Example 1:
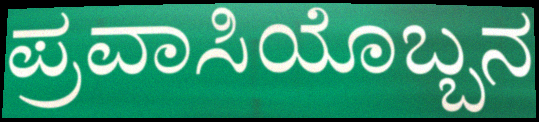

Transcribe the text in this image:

ಪ್ರವಾಸಿಯೊಬ್ಬನ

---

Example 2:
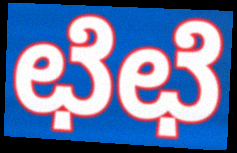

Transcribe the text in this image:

ಛೆಛೆ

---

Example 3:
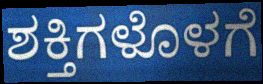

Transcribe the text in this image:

ಶಕ್ತಿಗಳೊಳಗೆ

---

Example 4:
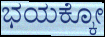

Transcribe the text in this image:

ಭಯಕ್ಕೋ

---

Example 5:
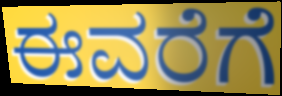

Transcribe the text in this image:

ಈವರೆಗೆ